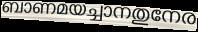
ബാണമയച്ചാനതുനേര